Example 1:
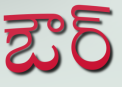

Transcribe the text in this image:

ఔర్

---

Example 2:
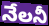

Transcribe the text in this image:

నేలనీ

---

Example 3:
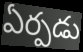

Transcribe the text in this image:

ఏర్పడు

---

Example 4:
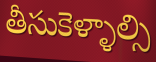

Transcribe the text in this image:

తీసుకెళ్ళాల్సి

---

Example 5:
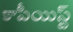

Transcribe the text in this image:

కాపీయిస్ట్